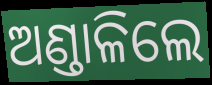
ଅଣ୍ଡାଳିଲେ